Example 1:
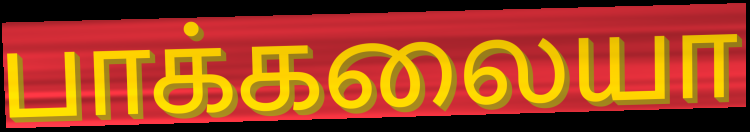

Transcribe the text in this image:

பாக்கலையா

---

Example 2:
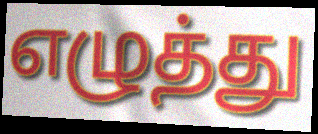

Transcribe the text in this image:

எழுத்து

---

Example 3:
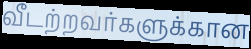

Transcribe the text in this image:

வீடற்றவர்களுக்கான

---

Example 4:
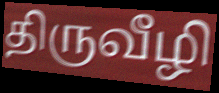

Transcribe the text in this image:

திருவீழி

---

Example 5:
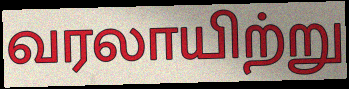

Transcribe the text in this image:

வரலாயிற்று